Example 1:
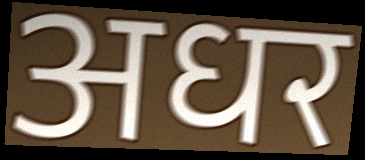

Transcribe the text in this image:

अधर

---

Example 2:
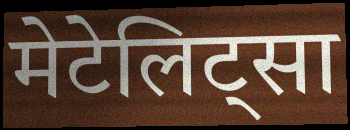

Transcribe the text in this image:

मेटेलिट्सा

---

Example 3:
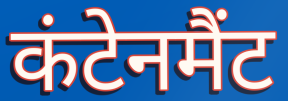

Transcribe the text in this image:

कंटेनमैंट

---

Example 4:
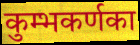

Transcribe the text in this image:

कुम्भकर्णका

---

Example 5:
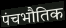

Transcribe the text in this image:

पंचभौतिक